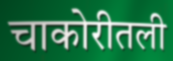
चाकोरीतली